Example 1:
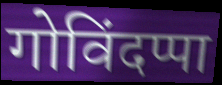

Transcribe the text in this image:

गोविंदप्पा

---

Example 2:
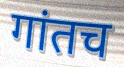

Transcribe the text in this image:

गांतच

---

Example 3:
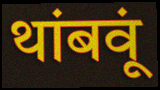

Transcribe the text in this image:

थांबवूं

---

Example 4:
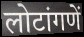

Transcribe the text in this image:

लोटांगणें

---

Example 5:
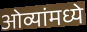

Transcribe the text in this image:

ओव्यांमध्ये